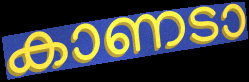
കാണടാ